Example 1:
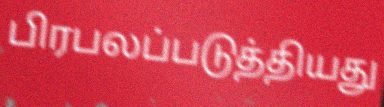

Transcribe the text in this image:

பிரபலப்படுத்தியது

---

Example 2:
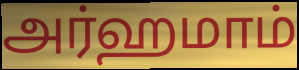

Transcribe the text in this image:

அர்ஹமாம்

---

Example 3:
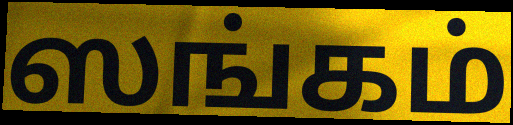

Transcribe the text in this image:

ஸங்கம்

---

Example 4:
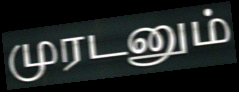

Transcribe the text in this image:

முரடனும்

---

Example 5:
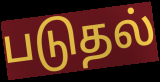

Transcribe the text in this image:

படுதல்